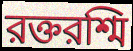
রক্তরশ্মি